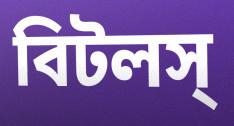
বিটলস্